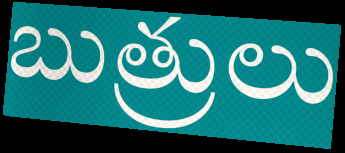
బుత్రులు